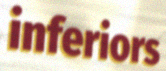
inferiors